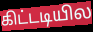
கிட்டடியில